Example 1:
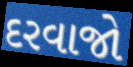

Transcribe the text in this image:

દરવાજો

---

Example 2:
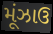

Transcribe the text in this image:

મૂંઝાઉ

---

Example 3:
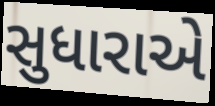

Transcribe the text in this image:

સુધારાએ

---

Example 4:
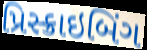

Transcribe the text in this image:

પ્રિસ્ક્રાઇબિંગ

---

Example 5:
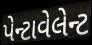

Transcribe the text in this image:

પેન્ટાવેલેન્ટ